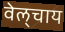
वेल्चाय